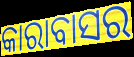
କାରାବାସର